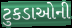
ટુકડાઓની